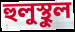
হুলুস্থুল